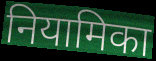
नियामिका